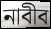
নাবীব